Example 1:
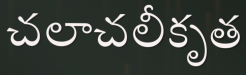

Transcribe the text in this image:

చలాచలీకృత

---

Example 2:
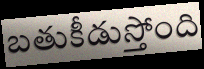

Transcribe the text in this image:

బతుకీడుస్తోంది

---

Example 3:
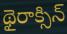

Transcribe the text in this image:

థైరాక్సిన్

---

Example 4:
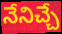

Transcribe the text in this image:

నేనిచ్చే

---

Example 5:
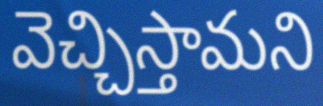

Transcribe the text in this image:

వెచ్చిస్తామని